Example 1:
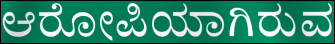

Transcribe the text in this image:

ಆರೋಪಿಯಾಗಿರುವ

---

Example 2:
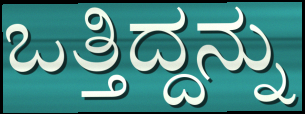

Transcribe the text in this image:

ಒತ್ತಿದ್ದನ್ನು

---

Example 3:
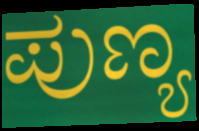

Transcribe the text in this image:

ಪುಣ್ಯ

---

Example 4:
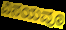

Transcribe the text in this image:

ವಿನಯವೂ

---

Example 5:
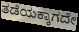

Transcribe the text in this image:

ತಡೆಯಕ್ಕಾಗದೇ